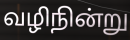
வழிநின்று